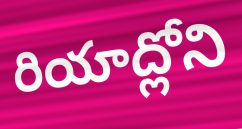
రియాద్లోని